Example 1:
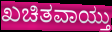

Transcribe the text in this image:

ಖಚಿತವಾಯ್ತು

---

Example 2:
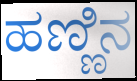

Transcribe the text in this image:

ಹಣ್ಣಿನ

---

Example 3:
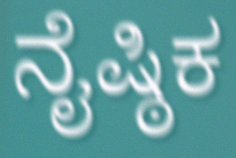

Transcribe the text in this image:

ನೈಷ್ಠಿಕ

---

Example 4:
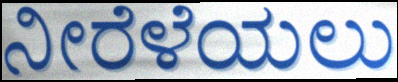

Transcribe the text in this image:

ನೀರೆಳೆಯಲು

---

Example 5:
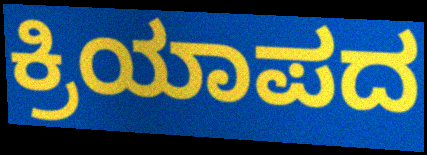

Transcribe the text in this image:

ಕ್ರಿಯಾಪದ